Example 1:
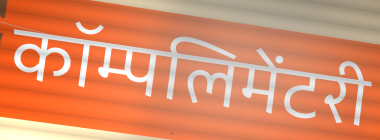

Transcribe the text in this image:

कॉम्पलिमेंटरी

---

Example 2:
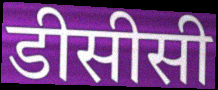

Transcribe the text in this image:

डीसीसी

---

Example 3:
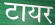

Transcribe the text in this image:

टायर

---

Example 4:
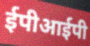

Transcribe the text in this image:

ईपीआईपी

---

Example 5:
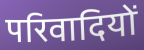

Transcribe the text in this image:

परिवादियों